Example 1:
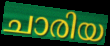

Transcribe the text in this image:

ചാരിയ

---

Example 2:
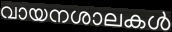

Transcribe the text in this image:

വായനശാലകൾ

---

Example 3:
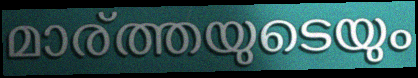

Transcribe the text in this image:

മാര്ത്തയുടെയും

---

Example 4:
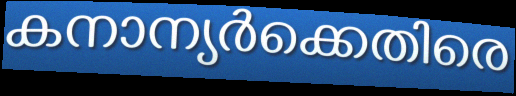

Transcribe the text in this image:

കനാന്യർക്കെതിരെ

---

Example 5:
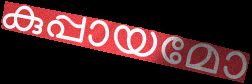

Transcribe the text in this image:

കുപ്പായമോ